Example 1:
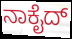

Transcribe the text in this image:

ನಾಕೈದ್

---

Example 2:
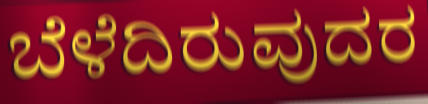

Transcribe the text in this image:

ಬೆಳೆದಿರುವುದರ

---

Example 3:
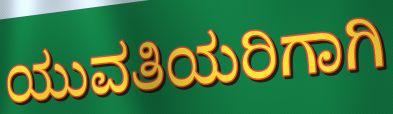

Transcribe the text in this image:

ಯುವತಿಯರಿಗಾಗಿ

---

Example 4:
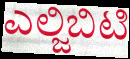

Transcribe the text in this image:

ಎಲ್ಜಿಬಿಟಿ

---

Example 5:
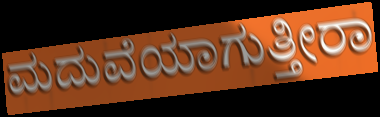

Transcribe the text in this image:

ಮದುವೆಯಾಗುತ್ತೀರಾ